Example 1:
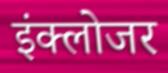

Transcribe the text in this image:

इंक्लोजर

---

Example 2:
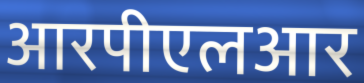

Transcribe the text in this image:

आरपीएलआर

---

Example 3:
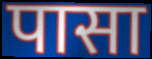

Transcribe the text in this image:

पासा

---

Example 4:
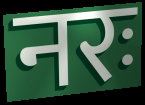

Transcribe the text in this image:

नरः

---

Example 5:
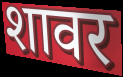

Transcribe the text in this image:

शावर